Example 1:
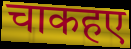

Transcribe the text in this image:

चाकहए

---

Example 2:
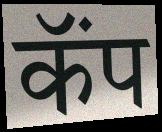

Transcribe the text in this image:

कॅंप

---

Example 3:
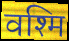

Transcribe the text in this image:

वश्मि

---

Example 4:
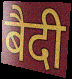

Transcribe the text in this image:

बैदी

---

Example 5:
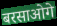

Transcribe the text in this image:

बरसाओगे